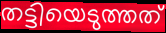
തട്ടിയെടുത്തത്